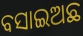
ବସାଇଅଛ